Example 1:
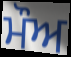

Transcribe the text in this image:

ਮੌਅ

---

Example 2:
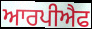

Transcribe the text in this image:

ਆਰਪੀਐਫ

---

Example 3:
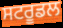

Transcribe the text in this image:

ਸਟਰੂਡਲ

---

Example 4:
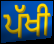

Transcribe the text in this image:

ਪੱਖੀ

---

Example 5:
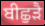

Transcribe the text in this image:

ਬੀਛੁੜੈ